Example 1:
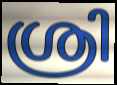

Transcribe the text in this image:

ശ്രി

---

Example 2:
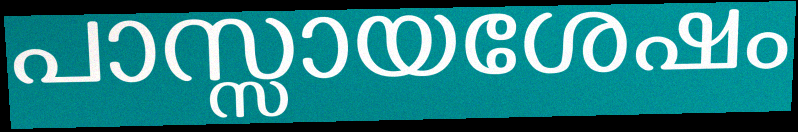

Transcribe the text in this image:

പാസ്സായശേഷം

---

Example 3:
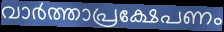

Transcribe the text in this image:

വാർത്താപ്രക്ഷേപണം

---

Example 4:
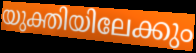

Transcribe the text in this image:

യുക്തിയിലേക്കും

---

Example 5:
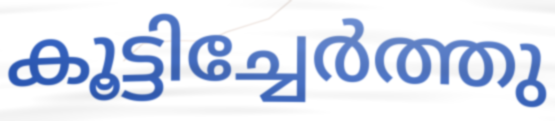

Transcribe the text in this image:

കൂട്ടിച്ചേർത്തു